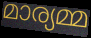
മാര്യമ്മ